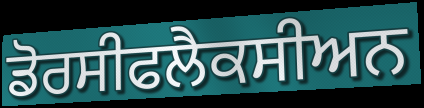
ਡੋਰਸੀਫਲੈਕਸੀਅਨ